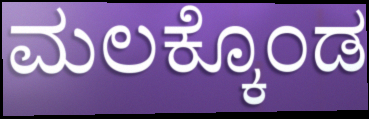
ಮಲಕ್ಕೊಂಡ